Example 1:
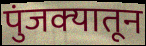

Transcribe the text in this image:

पुंजक्यातून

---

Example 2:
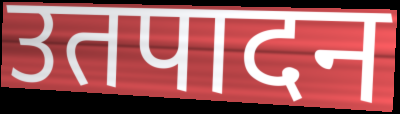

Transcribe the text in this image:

उतपादन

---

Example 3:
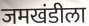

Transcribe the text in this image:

जमखंडीला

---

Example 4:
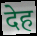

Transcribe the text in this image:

देह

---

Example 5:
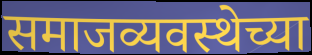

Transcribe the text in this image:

समाजव्यवस्थेच्या